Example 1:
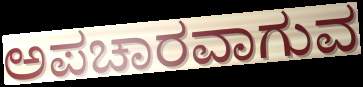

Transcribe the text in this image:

ಅಪಚಾರವಾಗುವ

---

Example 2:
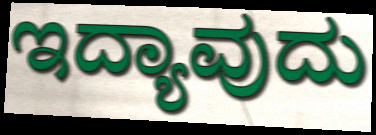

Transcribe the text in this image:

ಇದ್ಯಾವುದು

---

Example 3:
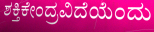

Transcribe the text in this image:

ಶಕ್ತಿಕೇಂದ್ರವಿದೆಯೆಂದು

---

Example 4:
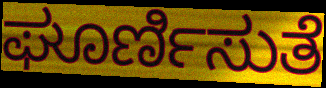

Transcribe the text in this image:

ಘೂರ್ಣಿಸುತೆ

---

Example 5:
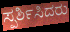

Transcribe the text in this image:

ಸ್ಪರ್ಶಿಸಿದರು